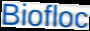
Biofloc